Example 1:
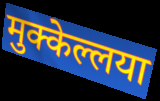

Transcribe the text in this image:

मुक्केल्लया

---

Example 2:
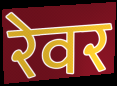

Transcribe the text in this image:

रेवर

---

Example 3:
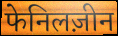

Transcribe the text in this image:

फेनिलज़ीन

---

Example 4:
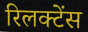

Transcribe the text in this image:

रिलक्टेंस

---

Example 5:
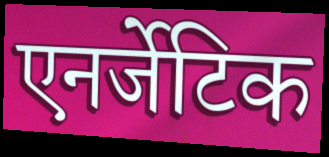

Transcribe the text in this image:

एनर्जेटिक